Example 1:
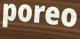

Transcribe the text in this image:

poreo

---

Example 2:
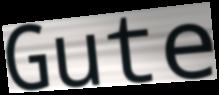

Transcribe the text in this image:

Gute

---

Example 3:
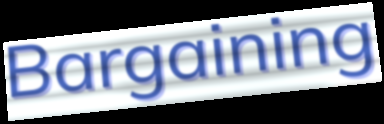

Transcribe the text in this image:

Bargaining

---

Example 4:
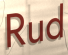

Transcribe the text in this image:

Rud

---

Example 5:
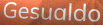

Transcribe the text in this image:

Gesualdo